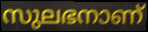
സുലഭനാണ്